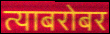
त्याबरोबर